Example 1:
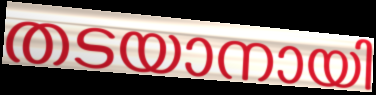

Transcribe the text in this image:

തടയാനായി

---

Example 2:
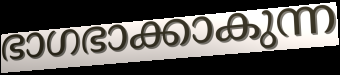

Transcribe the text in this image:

ഭാഗഭാക്കാകുന്ന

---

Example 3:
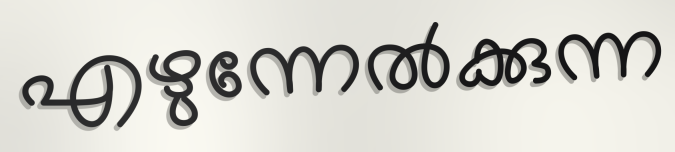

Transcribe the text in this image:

എഴുന്നേൽക്കുന്ന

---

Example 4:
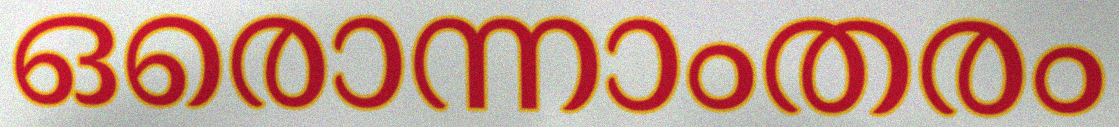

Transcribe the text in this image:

ഒരൊന്നാംതരം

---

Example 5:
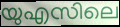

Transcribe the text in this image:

യുഎസിലെ